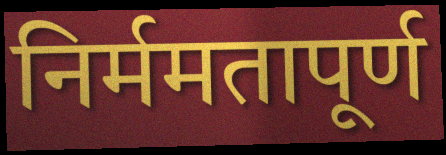
निर्ममतापूर्ण